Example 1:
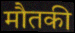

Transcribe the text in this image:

मौतकी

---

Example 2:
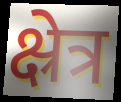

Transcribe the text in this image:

क्ष्रेत्र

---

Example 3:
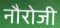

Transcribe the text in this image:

नौरोजी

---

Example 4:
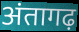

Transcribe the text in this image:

अंतागढ़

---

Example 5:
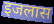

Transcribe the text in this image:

इजलास